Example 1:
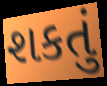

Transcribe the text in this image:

શકતું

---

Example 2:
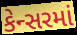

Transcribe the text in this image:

કેન્સરમાં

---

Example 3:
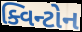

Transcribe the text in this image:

ક્વિન્ટોન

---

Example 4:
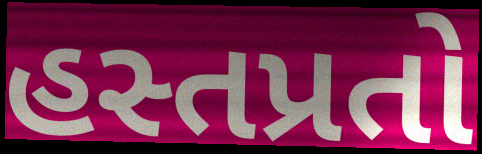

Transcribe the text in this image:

હસ્તપ્રતો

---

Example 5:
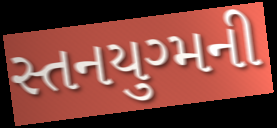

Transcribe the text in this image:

સ્તનયુગ્મની